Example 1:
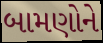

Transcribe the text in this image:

બામણોને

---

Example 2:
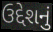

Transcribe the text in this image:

ઉદ્દેશનું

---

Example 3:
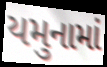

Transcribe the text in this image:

યમુનામાં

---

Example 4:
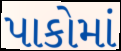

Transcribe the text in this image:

પાકોમાં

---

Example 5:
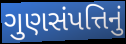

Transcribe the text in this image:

ગુણસંપત્તિનું